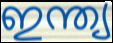
ഇന്ത്യ